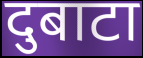
दुबाटा